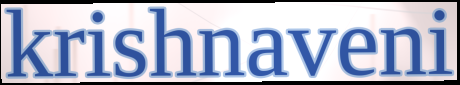
krishnaveni